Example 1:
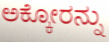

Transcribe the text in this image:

ಅಕ್ಕೋರನ್ನು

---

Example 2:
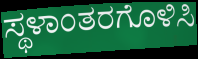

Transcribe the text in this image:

ಸ್ಥಳಾಂತರಗೊಳಿಸಿ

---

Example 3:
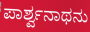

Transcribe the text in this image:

ಪಾರ್ಶ್ವನಾಥನು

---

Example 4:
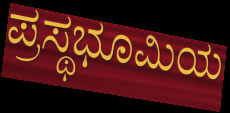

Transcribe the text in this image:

ಪ್ರಸ್ಥಭೂಮಿಯ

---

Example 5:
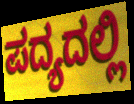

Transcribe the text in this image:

ಪದ್ಯದಲ್ಲಿ